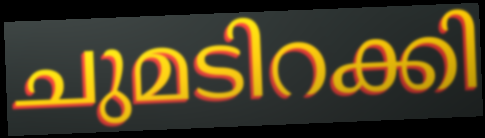
ചുമടിറക്കി